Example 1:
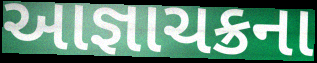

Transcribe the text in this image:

આજ્ઞાચક્રના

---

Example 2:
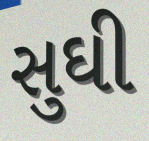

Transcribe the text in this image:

સુઘી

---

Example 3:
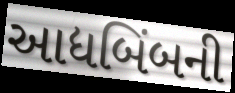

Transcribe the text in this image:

આદ્યબિંબની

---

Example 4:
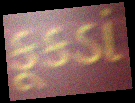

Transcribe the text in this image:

કૂકડાં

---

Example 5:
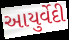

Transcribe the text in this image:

આયુર્વેદી